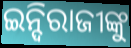
ଇନ୍ଦିରାଜୀଙ୍କୁ